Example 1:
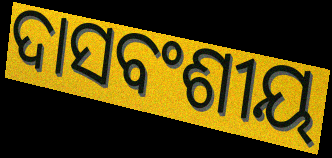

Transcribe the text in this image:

ଦାସବଂଶୀୟ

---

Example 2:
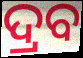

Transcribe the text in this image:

ଦ୍ରବ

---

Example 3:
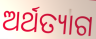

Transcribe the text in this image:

ଅର୍ଥତ୍ୟାଗ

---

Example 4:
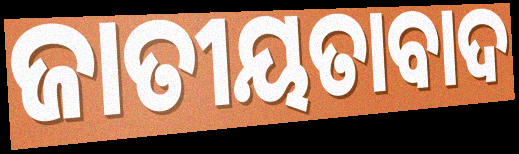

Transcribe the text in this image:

ଜାତୀୟତାବାଦ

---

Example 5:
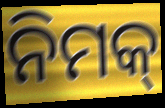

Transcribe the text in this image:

ନିମକ୍